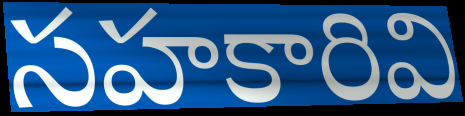
సహకారివి